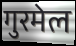
गुरमेल